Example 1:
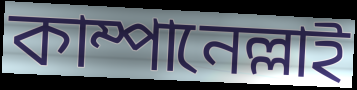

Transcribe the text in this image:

কাম্পানেল্লাই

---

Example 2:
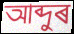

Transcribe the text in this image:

আব্দুৰ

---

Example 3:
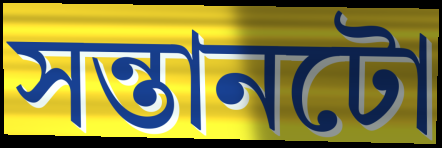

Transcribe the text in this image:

সন্তানটো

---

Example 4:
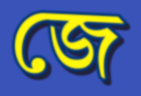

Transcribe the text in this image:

জে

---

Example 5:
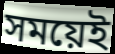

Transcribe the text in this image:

সময়েই